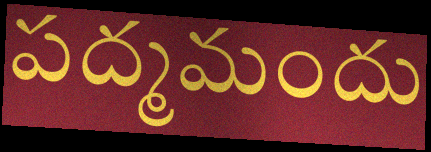
పద్మమందు